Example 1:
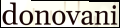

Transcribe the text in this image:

donovani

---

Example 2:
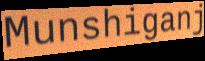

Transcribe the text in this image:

Munshiganj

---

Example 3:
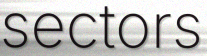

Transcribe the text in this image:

sectors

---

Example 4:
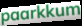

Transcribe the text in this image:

paarkkum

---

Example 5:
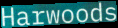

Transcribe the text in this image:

Harwoods